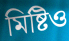
মিষ্টিও